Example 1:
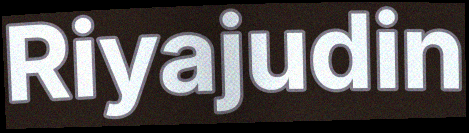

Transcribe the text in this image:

Riyajudin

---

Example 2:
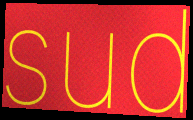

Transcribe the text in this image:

sud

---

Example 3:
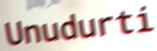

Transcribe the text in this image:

Unudurti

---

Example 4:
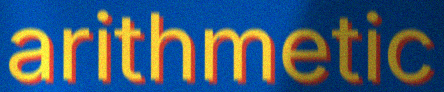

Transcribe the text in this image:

arithmetic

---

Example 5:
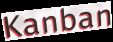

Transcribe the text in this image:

Kanban